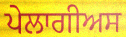
ਪੇਲਾਗੀਅਸ